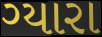
ગ્યારા